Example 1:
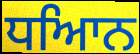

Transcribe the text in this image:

ਧਆਿਨ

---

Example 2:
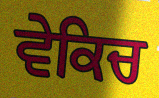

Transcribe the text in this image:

ਵੇਕਿਚ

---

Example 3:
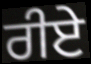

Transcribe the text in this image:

ਰੀਏ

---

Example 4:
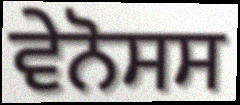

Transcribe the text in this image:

ਵੇਨੋਸਸ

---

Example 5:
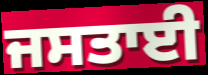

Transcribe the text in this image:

ਜਸਤਾਈ